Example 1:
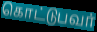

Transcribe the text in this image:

கொட்டுபவர்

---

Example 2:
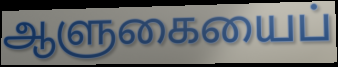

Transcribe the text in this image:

ஆளுகையைப்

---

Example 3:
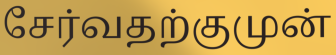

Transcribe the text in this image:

சேர்வதற்குமுன்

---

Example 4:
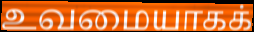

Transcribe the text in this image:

உவமையாகக்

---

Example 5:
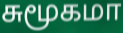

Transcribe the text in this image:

சுமூகமா